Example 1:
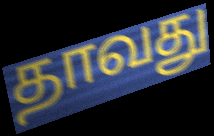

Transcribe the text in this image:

தாவது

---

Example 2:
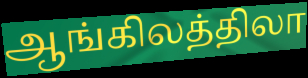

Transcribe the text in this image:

ஆங்கிலத்திலா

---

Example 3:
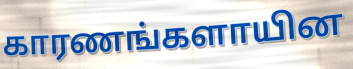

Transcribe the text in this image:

காரணங்களாயின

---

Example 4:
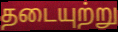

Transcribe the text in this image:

தடையுற்று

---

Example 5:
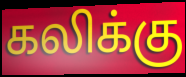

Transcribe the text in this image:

கலிக்கு